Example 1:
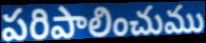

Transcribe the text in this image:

పరిపాలించుము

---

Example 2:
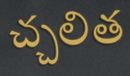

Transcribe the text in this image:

చ్చలిత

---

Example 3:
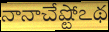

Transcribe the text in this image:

నానాచేష్టోఽథ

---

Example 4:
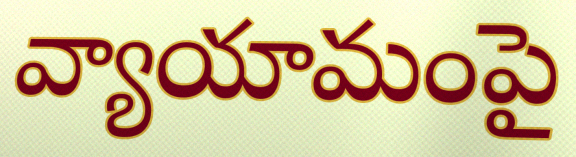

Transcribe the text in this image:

వ్యాయామంపై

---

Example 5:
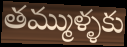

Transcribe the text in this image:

తమ్ముళ్ళకు